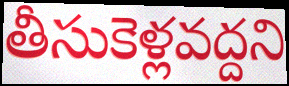
తీసుకెళ్లవద్దని